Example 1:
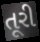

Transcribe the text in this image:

તૂરી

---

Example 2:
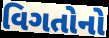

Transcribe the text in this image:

વિગતોનો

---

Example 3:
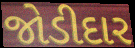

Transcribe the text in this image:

જોડીદાર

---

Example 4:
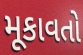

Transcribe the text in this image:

મૂકાવતો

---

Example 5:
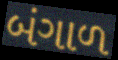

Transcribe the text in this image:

બંગાળ